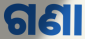
ଗଣା